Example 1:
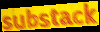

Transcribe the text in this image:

substack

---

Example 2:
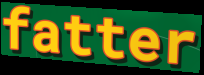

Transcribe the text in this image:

fatter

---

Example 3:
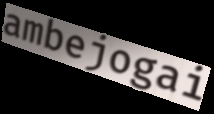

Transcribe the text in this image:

ambejogai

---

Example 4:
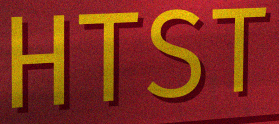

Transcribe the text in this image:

HTST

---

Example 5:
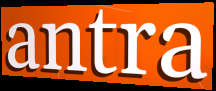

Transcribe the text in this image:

antra